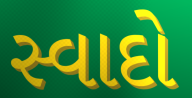
સ્વાદો